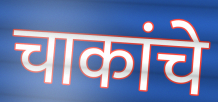
चाकांचे